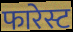
फारेस्ट